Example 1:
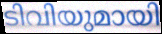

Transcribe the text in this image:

ടിവിയുമായി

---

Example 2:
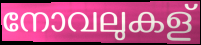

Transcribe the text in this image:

നോവലുകള്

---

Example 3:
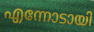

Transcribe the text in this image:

എന്നോടായി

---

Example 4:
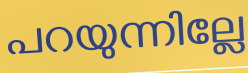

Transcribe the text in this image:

പറയുന്നില്ലേ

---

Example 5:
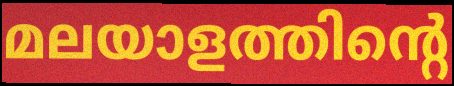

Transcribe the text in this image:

മലയാളത്തിന്റെ